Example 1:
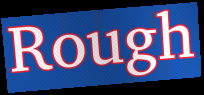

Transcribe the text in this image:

Rough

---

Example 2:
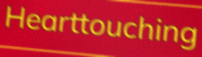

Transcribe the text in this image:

Hearttouching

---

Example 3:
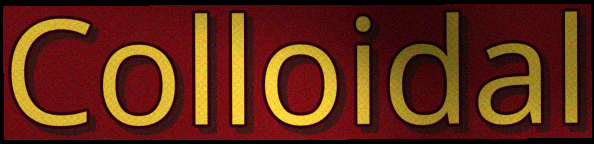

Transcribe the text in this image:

Colloidal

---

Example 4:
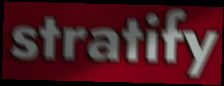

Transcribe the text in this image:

stratify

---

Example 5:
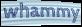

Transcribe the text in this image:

whammy